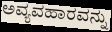
ಅವ್ಯವಹಾರವನ್ನು